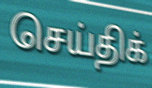
செய்திக்